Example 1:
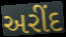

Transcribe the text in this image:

અરીંદ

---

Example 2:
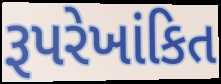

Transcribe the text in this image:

રૂપરેખાંકિત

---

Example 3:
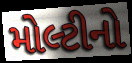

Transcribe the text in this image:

મોલ્ટીનો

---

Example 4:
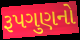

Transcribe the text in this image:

રૂપગુણનો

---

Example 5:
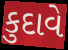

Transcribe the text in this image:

કુદાવે